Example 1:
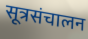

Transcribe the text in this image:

सूत्रसंचालन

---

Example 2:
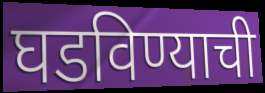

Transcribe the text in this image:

घडविण्याची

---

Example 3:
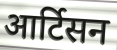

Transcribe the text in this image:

आर्टिसन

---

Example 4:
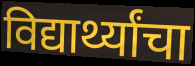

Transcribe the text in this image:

विद्यार्थ्यांचा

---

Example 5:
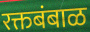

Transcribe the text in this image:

रक्तबंबाळ